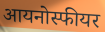
आयनोस्फीयर